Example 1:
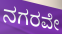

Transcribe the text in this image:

ನಗರವೇ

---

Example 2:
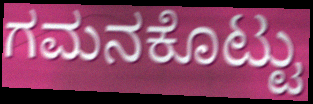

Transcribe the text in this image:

ಗಮನಕೊಟ್ಟು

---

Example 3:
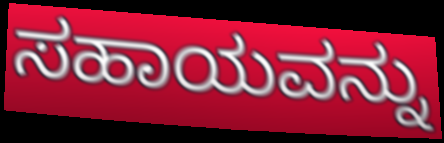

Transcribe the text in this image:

ಸಹಾಯವನ್ನು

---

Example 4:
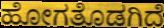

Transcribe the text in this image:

ಹೋಗತೊಡಗಿದೆ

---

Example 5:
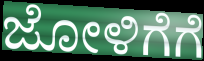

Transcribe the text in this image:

ಜೋಳಿಗೆಗೆ